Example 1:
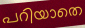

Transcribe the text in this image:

പറിയാതെ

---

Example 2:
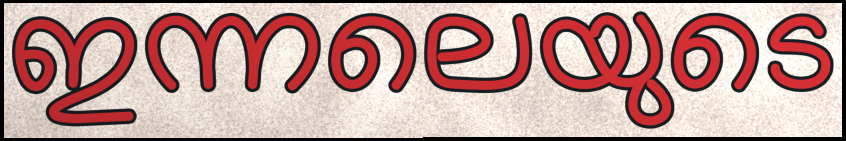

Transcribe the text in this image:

ഇന്നലെയുടെ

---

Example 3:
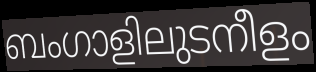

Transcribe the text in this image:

ബംഗാളിലുടനീളം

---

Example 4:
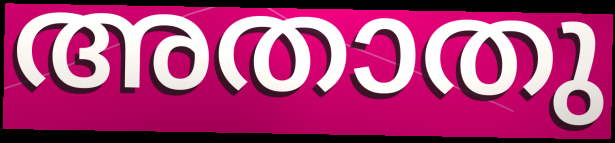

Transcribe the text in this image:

അതാതു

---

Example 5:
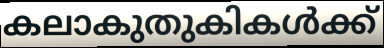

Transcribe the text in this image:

കലാകുതുകികൾക്ക്